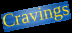
Cravings